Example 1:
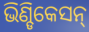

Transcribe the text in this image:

ଭିଣ୍ଡିକେସନ୍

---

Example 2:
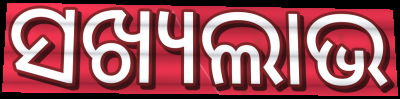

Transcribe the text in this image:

ସଖ୍ୟଲାଭ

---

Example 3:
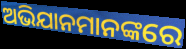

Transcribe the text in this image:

ଅଭିଯାନମାନଙ୍କରେ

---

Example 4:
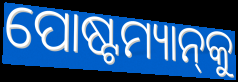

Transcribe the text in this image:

ପୋଷ୍ଟମ୍ୟାନ୍‌କୁ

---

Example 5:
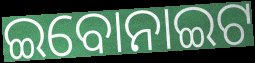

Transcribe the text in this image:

ଇବୋନାଇଟ